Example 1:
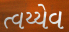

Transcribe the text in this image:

ત્વય્યેવ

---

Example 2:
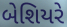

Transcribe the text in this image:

બેશિયરે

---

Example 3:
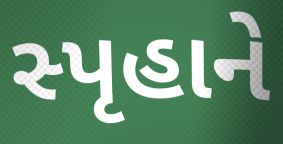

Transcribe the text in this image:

સ્પૃહાને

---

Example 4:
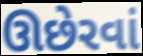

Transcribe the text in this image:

ઊછેરવાં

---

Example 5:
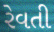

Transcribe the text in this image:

રેવતી